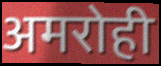
अमरोही